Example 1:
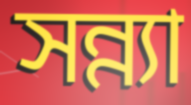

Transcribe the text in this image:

সন্ন্যা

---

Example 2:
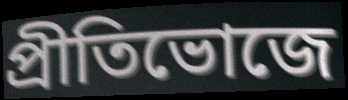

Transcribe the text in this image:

প্রীতিভোজে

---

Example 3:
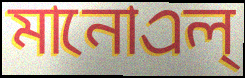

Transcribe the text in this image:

মানোএল্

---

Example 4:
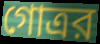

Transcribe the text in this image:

গোত্রর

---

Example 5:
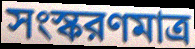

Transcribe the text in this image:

সংস্করণমাত্র